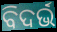
ବିଦର୍ଭ